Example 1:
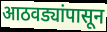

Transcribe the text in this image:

आठवड्यांपासून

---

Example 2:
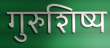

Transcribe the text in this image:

गुरुशिष्य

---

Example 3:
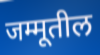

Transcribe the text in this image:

जम्मूतील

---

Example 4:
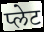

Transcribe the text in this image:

प्लेट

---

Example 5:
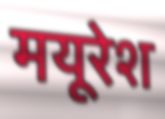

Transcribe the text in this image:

मयूरेश